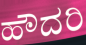
ಹೌದರಿ